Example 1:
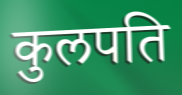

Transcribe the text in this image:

कुलपति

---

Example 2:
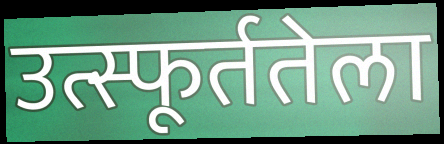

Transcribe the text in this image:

उत्स्फूर्ततेला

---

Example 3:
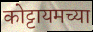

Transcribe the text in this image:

कोट्टायमच्या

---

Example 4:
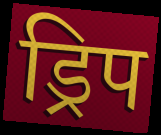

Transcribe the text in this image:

ड्रिप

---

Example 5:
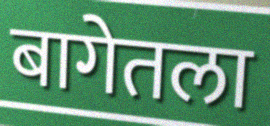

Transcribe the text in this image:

बागेतला